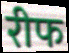
रीफ